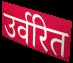
उर्वरित